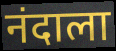
नंदाला